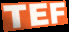
TEF